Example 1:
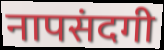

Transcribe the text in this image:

नापसंदगी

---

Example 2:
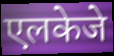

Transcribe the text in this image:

एलकेजे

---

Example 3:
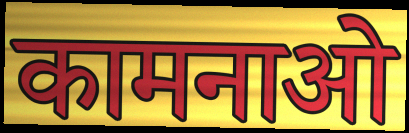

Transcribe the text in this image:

कामनाओ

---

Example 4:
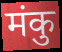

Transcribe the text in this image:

मंकु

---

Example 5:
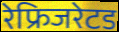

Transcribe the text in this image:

रेफ्रिजरेटड